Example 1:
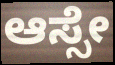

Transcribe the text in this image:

ಆಸ್ಸೇ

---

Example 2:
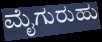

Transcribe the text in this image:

ಮೈಗುರುಹು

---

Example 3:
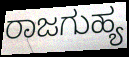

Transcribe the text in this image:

ರಾಜಗುಹ್ಯ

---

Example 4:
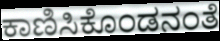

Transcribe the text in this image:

ಕಾಣಿಸಿಕೊಂಡನಂತೆ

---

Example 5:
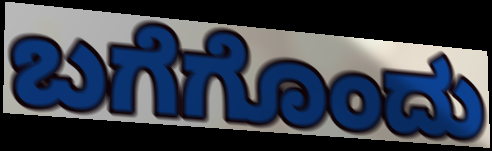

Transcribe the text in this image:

ಬಗೆಗೊಂದು